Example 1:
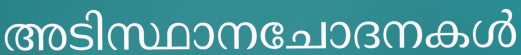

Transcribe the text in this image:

അടിസ്ഥാനചോദനകൾ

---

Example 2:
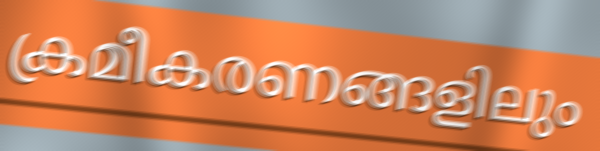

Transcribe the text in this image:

ക്രമീകരണങ്ങളിലും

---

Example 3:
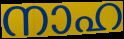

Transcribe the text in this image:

നാഹ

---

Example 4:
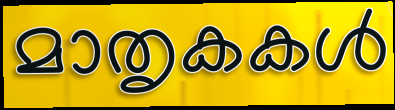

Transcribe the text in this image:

മാതൃകകൾ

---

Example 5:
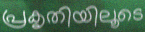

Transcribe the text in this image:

പ്രകൃതിയിലൂടെ